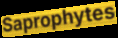
Saprophytes